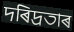
দৰিদ্ৰতাৰ